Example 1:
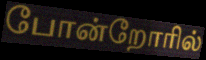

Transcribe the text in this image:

போன்றோரில்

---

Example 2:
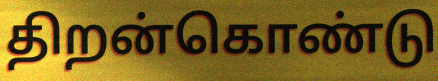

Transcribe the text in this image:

திறன்கொண்டு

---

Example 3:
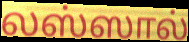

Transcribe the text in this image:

லஸ்ஸால்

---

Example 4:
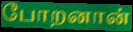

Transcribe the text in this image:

போறனான்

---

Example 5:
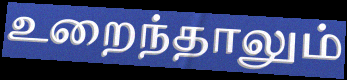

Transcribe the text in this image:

உறைந்தாலும்